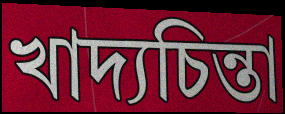
খাদ্যচিন্তা